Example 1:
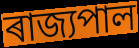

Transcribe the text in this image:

ৰাজ্যপাল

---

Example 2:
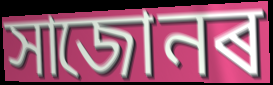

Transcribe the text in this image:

সাজোনৰ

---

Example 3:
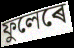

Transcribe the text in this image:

ফুলেৰে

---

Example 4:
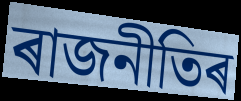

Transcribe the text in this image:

ৰাজনীতিৰ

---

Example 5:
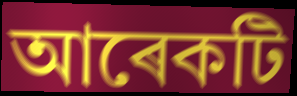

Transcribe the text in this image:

আৰেকটি